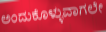
ಅಂದುಕೊಳ್ಳುವಾಗಲೇ